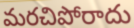
మరచిపోరాదు